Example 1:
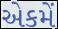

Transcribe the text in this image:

એકમેં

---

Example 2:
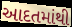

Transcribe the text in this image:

આદતમાંથી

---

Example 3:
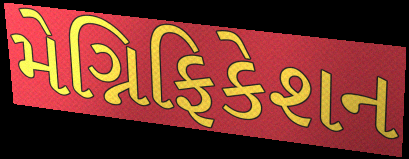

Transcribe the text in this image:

મેગ્નિફિકેશન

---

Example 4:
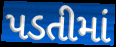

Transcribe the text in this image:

પડતીમાં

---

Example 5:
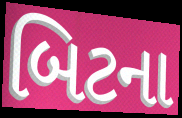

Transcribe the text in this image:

બિટના